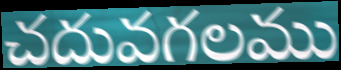
చదువగలము